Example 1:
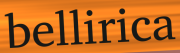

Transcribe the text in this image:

bellirica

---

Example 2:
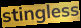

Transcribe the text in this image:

stingless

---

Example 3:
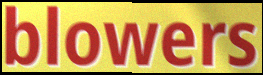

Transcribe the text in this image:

blowers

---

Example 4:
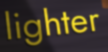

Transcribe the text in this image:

lighter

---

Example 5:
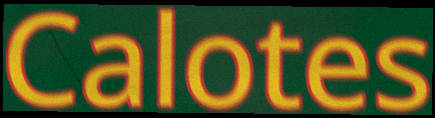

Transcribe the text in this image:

Calotes